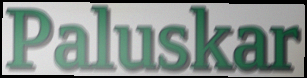
Paluskar